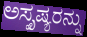
ಅಸ್ಪೃಷ್ಯರನ್ನು